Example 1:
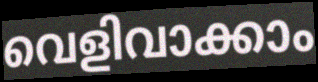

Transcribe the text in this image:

വെളിവാക്കാം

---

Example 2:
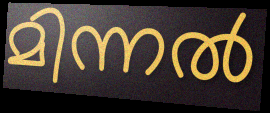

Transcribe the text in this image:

മിന്നൽ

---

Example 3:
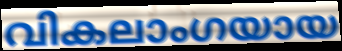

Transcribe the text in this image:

വികലാംഗയായ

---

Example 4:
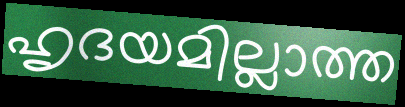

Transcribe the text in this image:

ഹൃദയമില്ലാത്ത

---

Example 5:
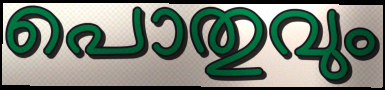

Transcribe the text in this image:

പൊതുവും